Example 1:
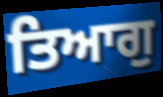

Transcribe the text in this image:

ਤਿਆਗੁ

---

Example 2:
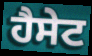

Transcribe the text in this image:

ਹੈਸੇਟ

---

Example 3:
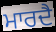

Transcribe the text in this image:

ਮਾਰਦੈ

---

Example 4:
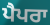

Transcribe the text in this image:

ਪੈਪਰਾ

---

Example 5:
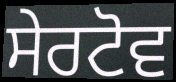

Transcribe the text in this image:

ਸੇਰਟੋਵ